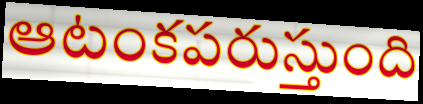
ఆటంకపరుస్తుంది